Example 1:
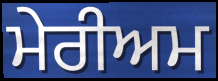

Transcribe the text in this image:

ਮੇਰੀਅਮ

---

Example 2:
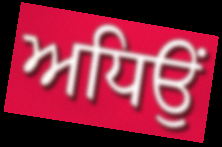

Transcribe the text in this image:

ਅਧਿਉਂ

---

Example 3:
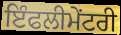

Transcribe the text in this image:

ਇੰਫਲੀਮੇਂਟਰੀ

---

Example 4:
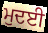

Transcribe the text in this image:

ਮੁਦਈ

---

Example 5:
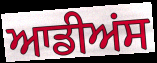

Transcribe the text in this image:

ਆਡੀਅਂਸ